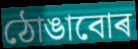
ঠোঙাবোৰ